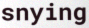
snying